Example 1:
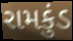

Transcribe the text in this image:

રામકુંડ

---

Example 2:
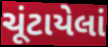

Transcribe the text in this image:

ચૂંટાયેલાં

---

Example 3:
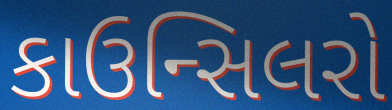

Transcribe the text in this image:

કાઉન્સિલરો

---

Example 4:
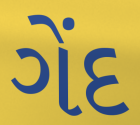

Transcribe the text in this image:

ગેંદ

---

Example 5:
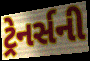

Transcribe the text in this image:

ટ્રેનર્સની